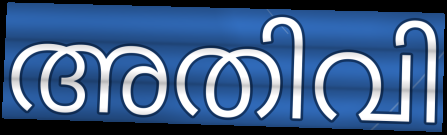
അതിവി